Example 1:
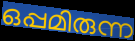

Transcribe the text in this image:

ഒപ്പമിരുന്ന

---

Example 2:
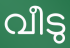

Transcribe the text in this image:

വീടു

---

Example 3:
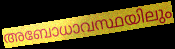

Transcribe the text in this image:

അബോധാവസ്ഥയിലും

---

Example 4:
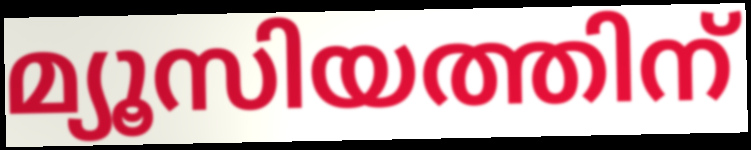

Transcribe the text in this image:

മ്യൂസിയത്തിന്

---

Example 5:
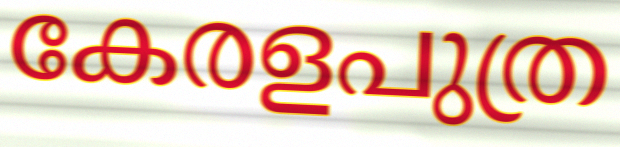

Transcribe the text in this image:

കേരളപുത്ര